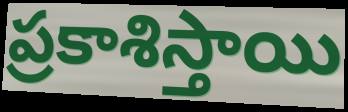
ప్రకాశిస్తాయి